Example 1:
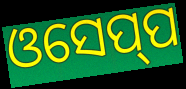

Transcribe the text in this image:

ଓସେପ୍‍ପ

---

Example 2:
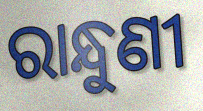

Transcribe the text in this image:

ରାନ୍ଧୁଣୀ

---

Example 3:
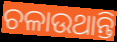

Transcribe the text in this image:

ଚଳାଉଥାନ୍ତି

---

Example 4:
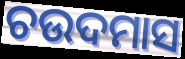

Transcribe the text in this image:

ଚଉଦମାସ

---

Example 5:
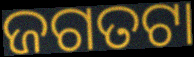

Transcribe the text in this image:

ଜଗତଟା